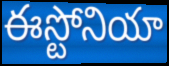
ఈస్టోనియా